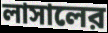
লাসালের